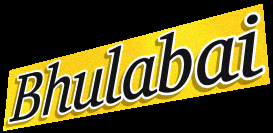
Bhulabai